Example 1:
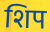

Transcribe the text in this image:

शिप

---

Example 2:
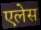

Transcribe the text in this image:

एलेस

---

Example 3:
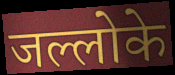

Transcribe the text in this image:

जल्लोके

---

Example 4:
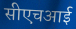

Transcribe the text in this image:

सीएचआई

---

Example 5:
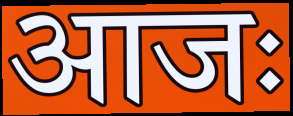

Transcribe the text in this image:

आजः